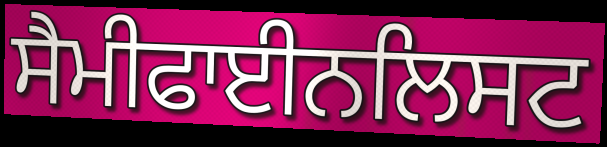
ਸੈਮੀਫਾਈਨਲਿਸਟ